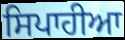
ਸਿਪਾਹੀਆ